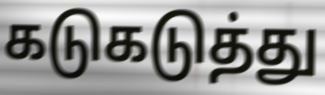
கடுகடுத்து